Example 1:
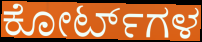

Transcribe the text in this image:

ಕೋರ್ಟ್‌ಗಳ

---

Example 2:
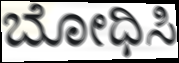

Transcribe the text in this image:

ಬೋಧಿಸಿ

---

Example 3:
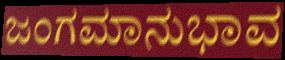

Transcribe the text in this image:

ಜಂಗಮಾನುಭಾವ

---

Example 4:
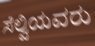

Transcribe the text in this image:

ಸೆಲ್ವಿಯವರು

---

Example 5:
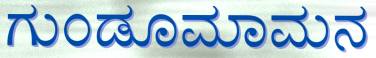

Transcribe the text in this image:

ಗುಂಡೂಮಾಮನ